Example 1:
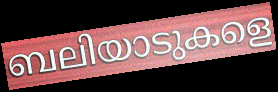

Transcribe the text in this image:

ബലിയാടുകളെ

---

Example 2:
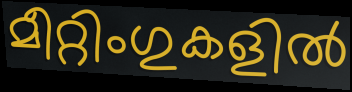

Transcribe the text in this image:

മീറ്റിംഗുകളിൽ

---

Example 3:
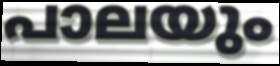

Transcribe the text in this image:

പാലയും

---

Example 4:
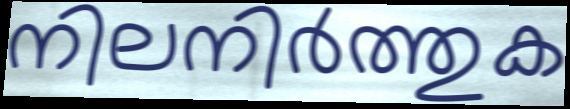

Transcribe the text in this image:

നിലനിർത്തുക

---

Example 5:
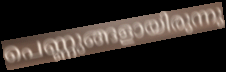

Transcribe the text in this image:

പെണ്ണുങ്ങളായിരുന്നു